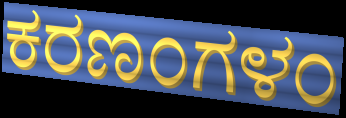
ಕರಣಂಗಳಂ